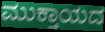
ಮುಕ್ತಾಯದ